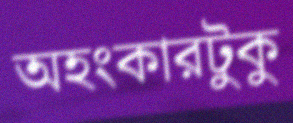
অহংকারটুকু